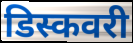
डिस्कवरी